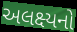
અલક્ષ્યનો